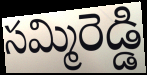
సమ్మిరెడ్డి